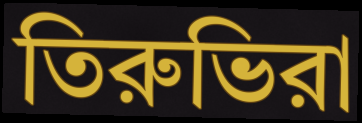
তিরুভিরা